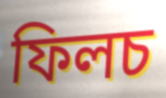
ফিলচ